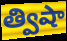
త్విషా